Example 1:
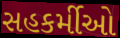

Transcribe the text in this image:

સહકર્મીઓ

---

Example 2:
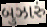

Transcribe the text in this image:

બુઝારું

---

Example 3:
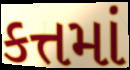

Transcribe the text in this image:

કત્તમાં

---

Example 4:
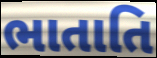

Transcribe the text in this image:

ભાતાતિ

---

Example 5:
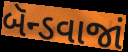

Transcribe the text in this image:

બૅન્ડવાજાં